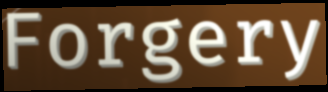
Forgery